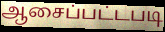
ஆசைப்பட்டபடி